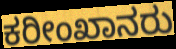
ಕರೀಂಖಾನರು